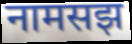
नामसझ